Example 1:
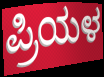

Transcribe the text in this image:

ಪ್ರಿಯಳ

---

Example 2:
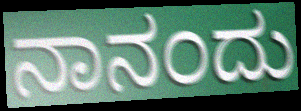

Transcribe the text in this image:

ನಾನಂದು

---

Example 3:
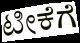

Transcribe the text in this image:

ಟೀಕೆಗೆ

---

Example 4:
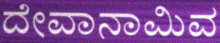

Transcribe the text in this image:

ದೇವಾನಾಮಿವ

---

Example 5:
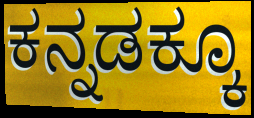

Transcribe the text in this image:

ಕನ್ನಡಕ್ಕೂ